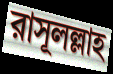
রাসূলল্লাহ